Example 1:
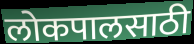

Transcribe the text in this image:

लोकपालसाठी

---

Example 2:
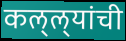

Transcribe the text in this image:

कल्ल्यांची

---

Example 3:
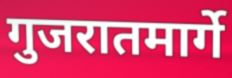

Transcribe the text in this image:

गुजरातमार्गे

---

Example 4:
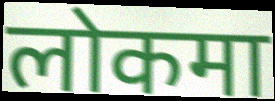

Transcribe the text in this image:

लोकमा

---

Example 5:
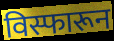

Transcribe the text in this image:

विस्फारून